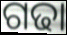
ଗଢା